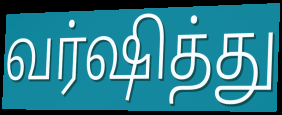
வர்ஷித்து